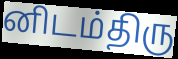
னிடம்திரு